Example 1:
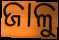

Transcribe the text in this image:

ଜାଳୁ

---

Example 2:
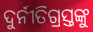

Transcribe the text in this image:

ଦୁର୍ନୀତିଗ୍ରସ୍ତଙ୍କୁ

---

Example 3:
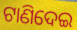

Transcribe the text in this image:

ଟାଣିଦେଇ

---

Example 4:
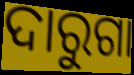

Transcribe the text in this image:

ଦାରୁଗା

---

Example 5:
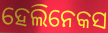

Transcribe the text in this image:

ହେଲିନେକସ